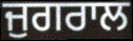
ਜੁਗਰਾਲ